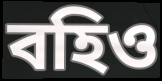
বহিও